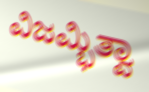
ವಿಜಮ್ಭಿತ್ವಾ